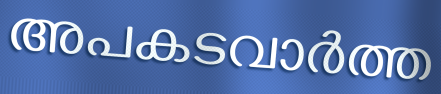
അപകടവാർത്ത